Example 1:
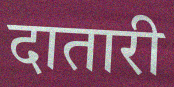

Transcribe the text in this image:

दातारी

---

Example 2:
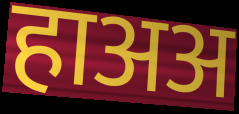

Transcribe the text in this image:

हाअअ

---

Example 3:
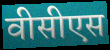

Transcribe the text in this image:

वीसीएस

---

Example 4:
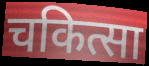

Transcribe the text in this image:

चकित्सा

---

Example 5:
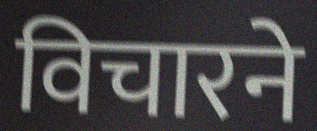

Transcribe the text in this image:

विचारने